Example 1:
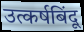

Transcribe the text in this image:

उत्कर्षबिंदू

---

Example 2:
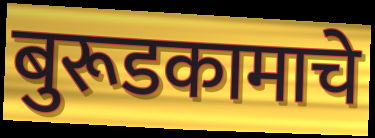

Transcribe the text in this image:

बुरूडकामाचे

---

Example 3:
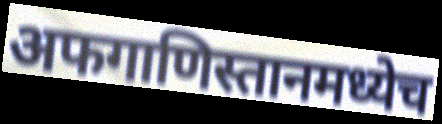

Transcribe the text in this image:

अफगाणिस्तानमध्येच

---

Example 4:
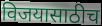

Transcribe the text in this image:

विजयासाठीच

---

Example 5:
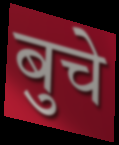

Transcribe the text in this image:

बुचे